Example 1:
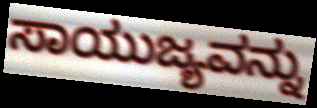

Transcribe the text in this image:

ಸಾಯುಜ್ಯವನ್ನು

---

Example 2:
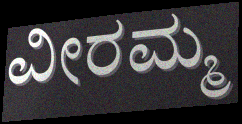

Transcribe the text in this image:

ವೀರಮ್ಮ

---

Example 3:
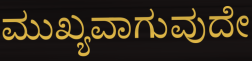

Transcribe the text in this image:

ಮುಖ್ಯವಾಗುವುದೇ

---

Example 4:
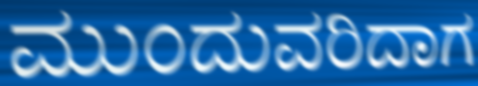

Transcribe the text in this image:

ಮುಂದುವರಿದಾಗ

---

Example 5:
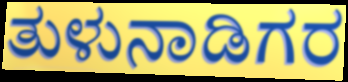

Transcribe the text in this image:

ತುಳುನಾಡಿಗರ